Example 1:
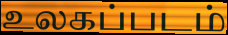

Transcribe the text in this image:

உலகப்படம்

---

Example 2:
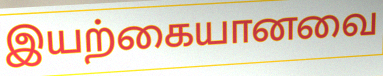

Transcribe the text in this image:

இயற்கையானவை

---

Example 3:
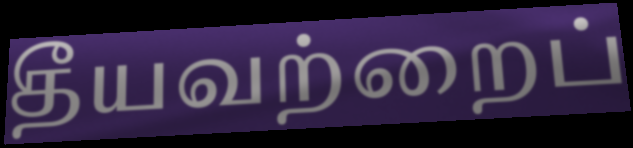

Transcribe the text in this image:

தீயவற்றைப்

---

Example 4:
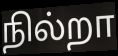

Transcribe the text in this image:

நில்றா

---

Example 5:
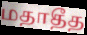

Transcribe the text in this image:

மதாதீத